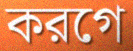
করগে